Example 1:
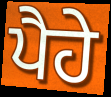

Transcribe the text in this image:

ਪੈਹੇ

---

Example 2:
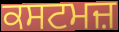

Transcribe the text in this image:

ਕਸਟਮਜ਼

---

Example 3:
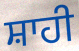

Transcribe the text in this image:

ਸ਼ਾਹੀ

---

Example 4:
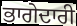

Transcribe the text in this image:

ਭਾਗੇਦਾਰੀ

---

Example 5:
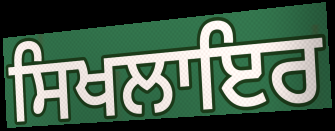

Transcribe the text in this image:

ਸਿਖਲਾਇਰ